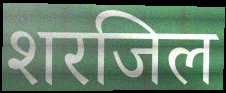
शरजिल